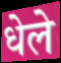
धेले